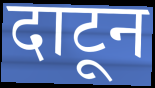
दाटून